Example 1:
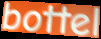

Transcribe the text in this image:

bottel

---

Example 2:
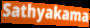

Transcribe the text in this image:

Sathyakama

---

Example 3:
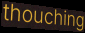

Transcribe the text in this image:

thouching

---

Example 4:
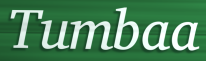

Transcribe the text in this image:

Tumbaa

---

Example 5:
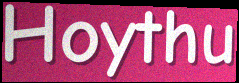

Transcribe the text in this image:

Hoythu